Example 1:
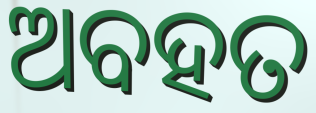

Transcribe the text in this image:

ଅବହତ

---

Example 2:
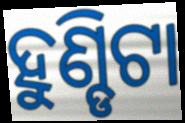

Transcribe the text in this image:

ହୁଣ୍ଡିଟା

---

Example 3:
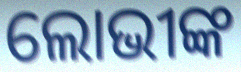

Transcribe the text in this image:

ଲୋଭୀଙ୍କ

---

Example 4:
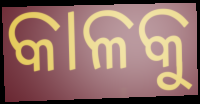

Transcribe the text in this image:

କାଳକୁ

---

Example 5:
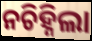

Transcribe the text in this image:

ନଚିହ୍ନିଲା